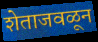
शेताजवळून